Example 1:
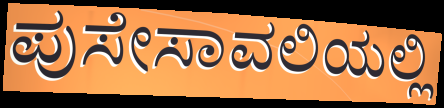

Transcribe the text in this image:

ಪುಸೇಸಾವಲಿಯಲ್ಲಿ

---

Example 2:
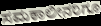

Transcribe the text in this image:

ಸಮಕಾಲೀನರಿಗೂ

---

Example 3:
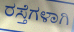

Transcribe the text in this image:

ರಸ್ತೆಗಳಾಗಿ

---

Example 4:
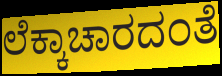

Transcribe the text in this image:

ಲೆಕ್ಕಾಚಾರದಂತೆ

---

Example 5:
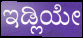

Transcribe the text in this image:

ಇಡ್ಲಿಯೇ